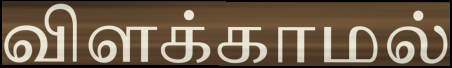
விளக்காமல்